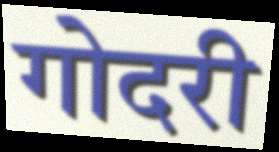
गोदरी